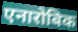
एनारोबिक